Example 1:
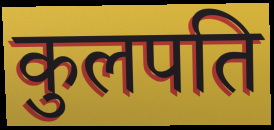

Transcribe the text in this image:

कुलपति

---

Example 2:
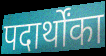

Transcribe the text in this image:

पदार्थोंका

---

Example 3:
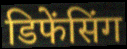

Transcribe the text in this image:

डिफेंसिंग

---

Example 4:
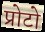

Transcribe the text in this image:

प्रोटो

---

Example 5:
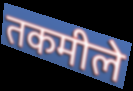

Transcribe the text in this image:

तकमीले